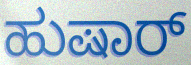
ಹುಷಾರ್